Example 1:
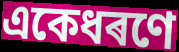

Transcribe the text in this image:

একেধৰণে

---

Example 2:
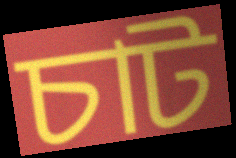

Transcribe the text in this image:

চাট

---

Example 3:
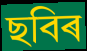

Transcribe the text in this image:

ছবিৰ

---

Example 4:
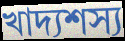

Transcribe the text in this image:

খাদ্যশস্য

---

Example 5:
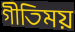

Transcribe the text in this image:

গীতিময়